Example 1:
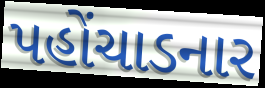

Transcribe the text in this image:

પહોંચાડનાર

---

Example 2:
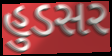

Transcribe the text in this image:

હુડસર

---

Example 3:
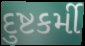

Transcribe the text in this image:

દુષ્ટકર્મી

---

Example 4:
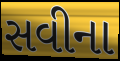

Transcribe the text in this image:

સવીના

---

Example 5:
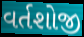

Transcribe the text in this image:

વર્તશોજી